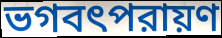
ভগবৎপরায়ণ